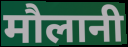
मौलानी